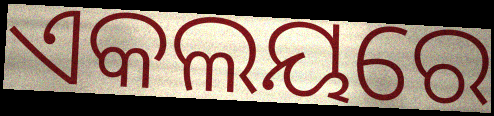
ଏକଲୟରେ